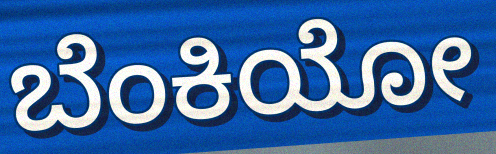
ಬೆಂಕಿಯೋ